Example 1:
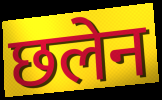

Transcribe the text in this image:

छलेन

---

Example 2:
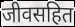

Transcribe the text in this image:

जीवसहित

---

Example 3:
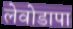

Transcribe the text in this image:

लेवोडापा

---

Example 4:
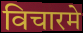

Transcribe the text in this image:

विचारमे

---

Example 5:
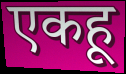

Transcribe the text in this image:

एकहू